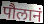
पौलानं